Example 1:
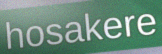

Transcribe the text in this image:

hosakere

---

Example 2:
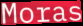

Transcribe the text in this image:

Moras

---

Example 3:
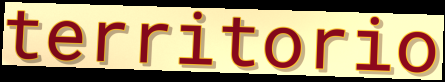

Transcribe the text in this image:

territorio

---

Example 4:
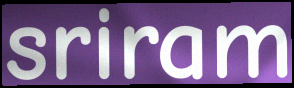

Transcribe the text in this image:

sriram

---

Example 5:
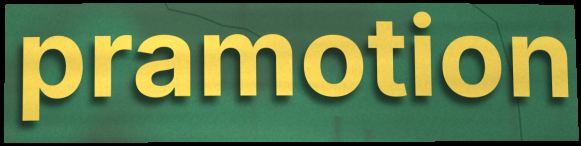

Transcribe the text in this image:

pramotion